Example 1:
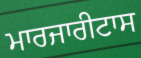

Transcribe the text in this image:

ਮਾਰਜਾਰੀਟਾਸ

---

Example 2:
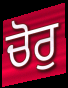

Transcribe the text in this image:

ਚੋਰੁ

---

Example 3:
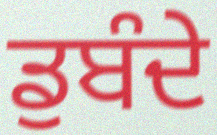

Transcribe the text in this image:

ਡੁਬੰਦੇ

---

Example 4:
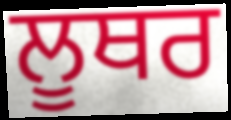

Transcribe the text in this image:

ਲੂਥਰ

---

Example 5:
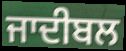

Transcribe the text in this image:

ਜਾਦੀਬਲ